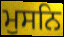
ਮੁਸਨਿ